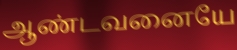
ஆண்டவனையே